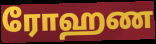
ரோஹண